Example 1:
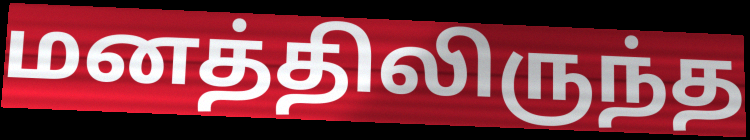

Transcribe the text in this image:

மனத்திலிருந்த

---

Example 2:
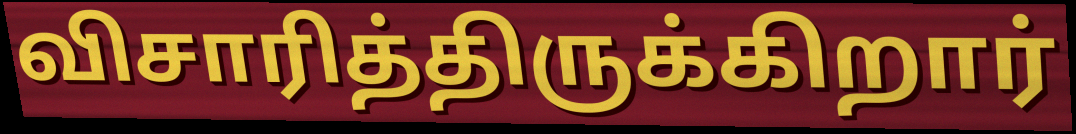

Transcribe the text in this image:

விசாரித்திருக்கிறார்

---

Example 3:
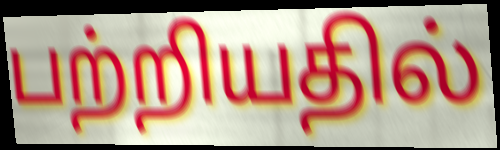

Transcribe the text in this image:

பற்றியதில்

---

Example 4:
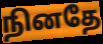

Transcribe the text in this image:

நினதே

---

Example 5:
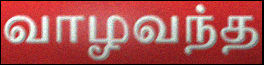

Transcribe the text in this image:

வாழவந்த